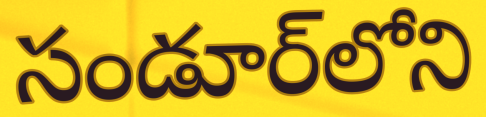
సండూర్‌లోని